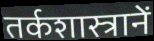
तर्कशास्त्रानें